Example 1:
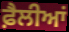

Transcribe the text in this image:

ਫ਼ੈਲੀਆਂ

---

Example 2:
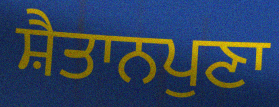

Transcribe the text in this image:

ਸ਼ੈਤਾਨਪੁਣਾ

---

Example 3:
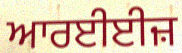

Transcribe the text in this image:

ਆਰਈਈਜ਼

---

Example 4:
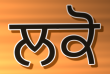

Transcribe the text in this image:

ਲਕੋ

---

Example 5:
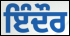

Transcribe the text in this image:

ਇੰਦੌਰ